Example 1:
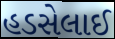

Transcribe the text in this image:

હડસેલાઈ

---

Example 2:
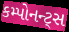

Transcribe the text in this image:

કમ્પોનન્ટ્સ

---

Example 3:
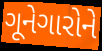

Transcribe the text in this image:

ગૂનેગારોને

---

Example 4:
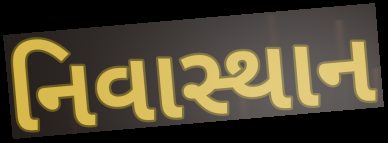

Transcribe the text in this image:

નિવાસ્થાન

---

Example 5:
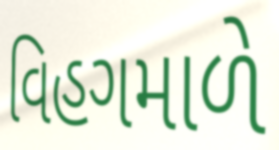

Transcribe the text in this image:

વિહગમાળે